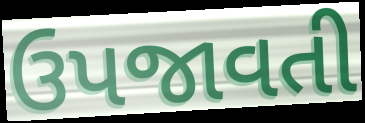
ઉપજાવતી